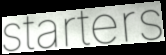
starters